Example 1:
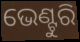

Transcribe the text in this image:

ଭେଣ୍ଟୁରି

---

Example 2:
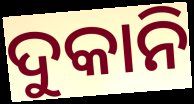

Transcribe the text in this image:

ଦୁକାନି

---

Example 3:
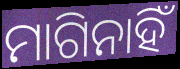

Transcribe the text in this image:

ମାଗିନାହିଁ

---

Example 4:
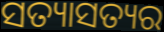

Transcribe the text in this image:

ସତ୍ୟାସତ୍ୟର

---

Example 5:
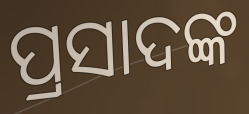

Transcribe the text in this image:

ପ୍ରସାଦଙ୍କ